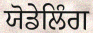
ਯੋਡੇਲਿੰਗ